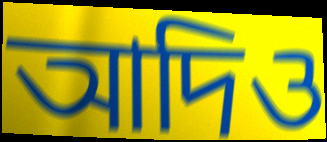
আদিও